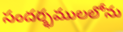
సందర్భములలోను